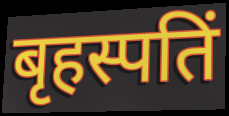
बृहस्पतिं